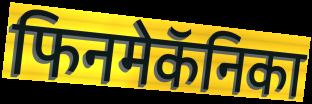
फिनमेकॅनिका